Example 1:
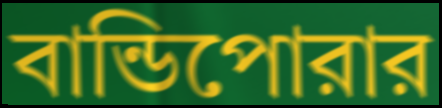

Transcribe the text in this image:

বান্ডিপোরার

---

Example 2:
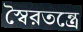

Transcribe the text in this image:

স্বৈরতন্ত্রে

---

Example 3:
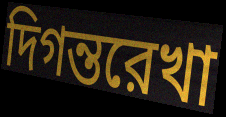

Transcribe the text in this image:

দিগন্তরেখা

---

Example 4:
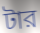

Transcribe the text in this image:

টার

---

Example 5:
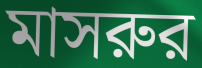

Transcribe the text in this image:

মাসরুর